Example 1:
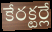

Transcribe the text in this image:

కేరక్టర్లే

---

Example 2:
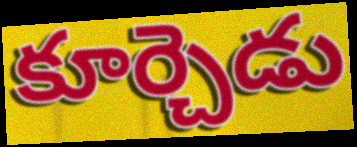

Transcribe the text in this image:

కూర్చెడు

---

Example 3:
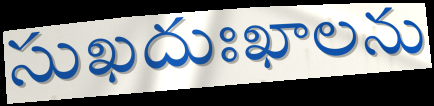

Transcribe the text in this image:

సుఖదుఃఖాలను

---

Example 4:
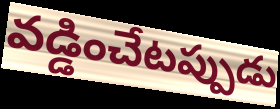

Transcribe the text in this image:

వడ్డించేటప్పుడు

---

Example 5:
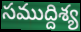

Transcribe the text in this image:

సముద్దిశ్య